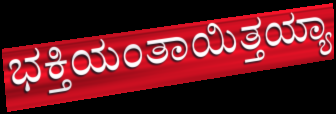
ಭಕ್ತಿಯಂತಾಯಿತ್ತಯ್ಯಾ